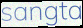
sangta